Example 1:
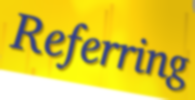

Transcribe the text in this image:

Referring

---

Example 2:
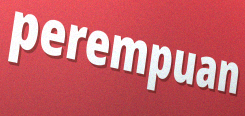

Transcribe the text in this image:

perempuan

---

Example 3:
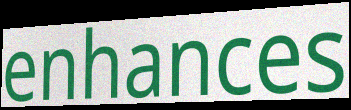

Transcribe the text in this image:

enhances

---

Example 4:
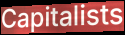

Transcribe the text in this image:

Capitalists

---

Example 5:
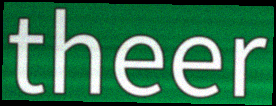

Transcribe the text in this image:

theer